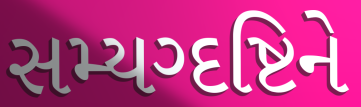
સમ્યગ્દષ્ટિને